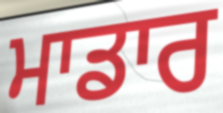
ਮਾਡਾਰ